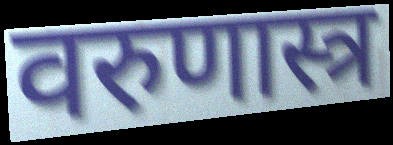
वरुणास्त्र